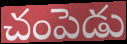
చంపెడు